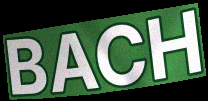
BACH